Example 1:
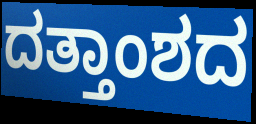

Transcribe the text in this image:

ದತ್ತಾಂಶದ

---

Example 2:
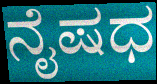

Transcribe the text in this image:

ನೈಷಧ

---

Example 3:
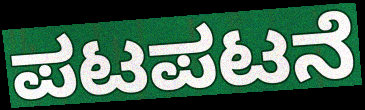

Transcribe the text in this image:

ಪಟಪಟನೆ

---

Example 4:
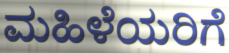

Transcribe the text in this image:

ಮಹಿಳೆಯರಿಗೆ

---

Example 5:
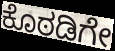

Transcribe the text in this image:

ಕೊಠಡಿಗೇ